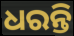
ଧରନ୍ତି